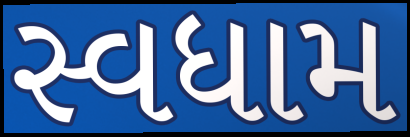
સ્વધામ